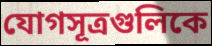
যোগসূত্রগুলিকে